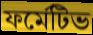
ফর্মেটিভ